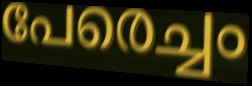
പേരെച്ചം